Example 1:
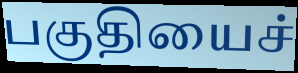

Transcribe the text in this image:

பகுதியைச்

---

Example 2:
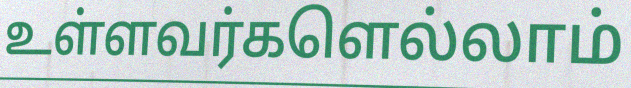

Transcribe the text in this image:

உள்ளவர்களெல்லாம்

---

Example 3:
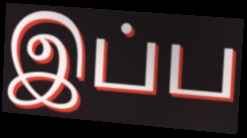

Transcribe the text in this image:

இப்ப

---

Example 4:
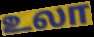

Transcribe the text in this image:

உலா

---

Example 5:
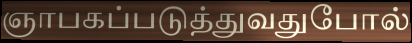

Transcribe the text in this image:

ஞாபகப்படுத்துவதுபோல்